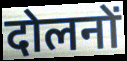
दोलनों